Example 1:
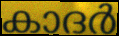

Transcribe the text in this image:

കാദർ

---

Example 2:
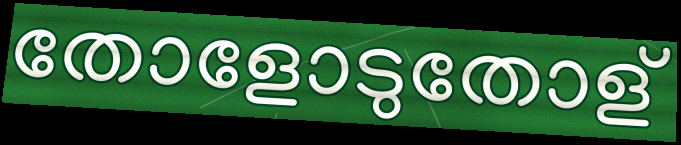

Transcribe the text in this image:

തോളോടുതോള്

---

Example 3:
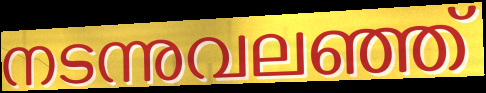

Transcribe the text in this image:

നടന്നുവലഞ്ഞ്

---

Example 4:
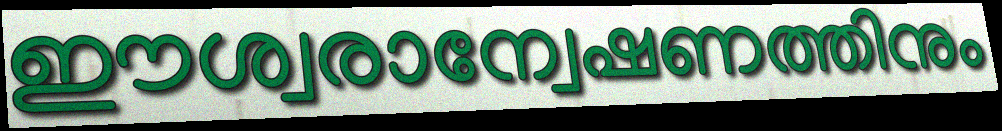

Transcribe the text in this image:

ഈശ്വരാന്വേഷണത്തിനും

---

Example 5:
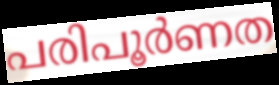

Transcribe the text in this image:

പരിപൂർണത